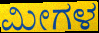
ಮೀಗಳ